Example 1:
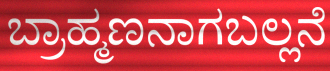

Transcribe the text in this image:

ಬ್ರಾಹ್ಮಣನಾಗಬಲ್ಲನೆ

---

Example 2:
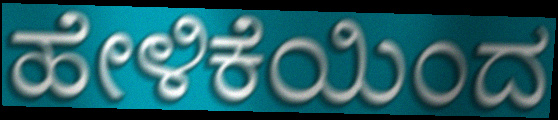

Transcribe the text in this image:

ಹೇಳಿಕೆಯಿಂದ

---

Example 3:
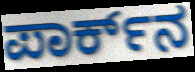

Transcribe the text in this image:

ಪಾರ್ಕ್‌ನ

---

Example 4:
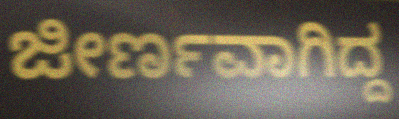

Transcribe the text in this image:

ಜೀರ್ಣವಾಗಿದ್ದ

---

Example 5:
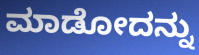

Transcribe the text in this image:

ಮಾಡೋದನ್ನು